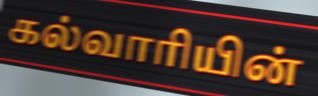
கல்வாரியின்